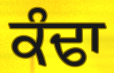
ਕੰਢਾ